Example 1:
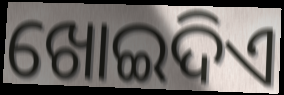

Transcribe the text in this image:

ଖୋଇଦିଏ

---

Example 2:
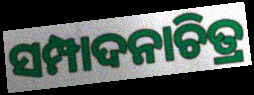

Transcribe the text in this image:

ସମ୍ପାଦନାଚିତ୍ର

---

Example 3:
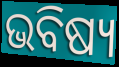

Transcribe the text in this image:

ଭବିଷ୍ଯ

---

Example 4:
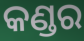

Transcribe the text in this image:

କଣ୍ଡର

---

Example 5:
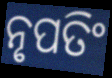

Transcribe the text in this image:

ନୃପତିଂ